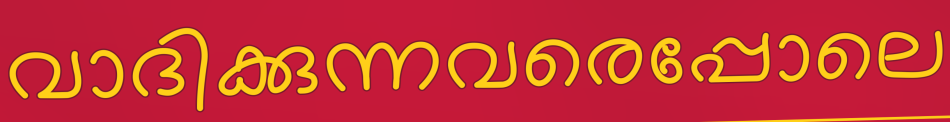
വാദിക്കുന്നവരെപ്പോലെ